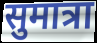
सुमात्रा